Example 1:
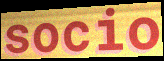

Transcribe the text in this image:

socio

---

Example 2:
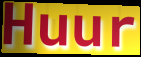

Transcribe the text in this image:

Huur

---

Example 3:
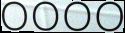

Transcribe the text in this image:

oooo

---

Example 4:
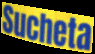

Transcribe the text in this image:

Sucheta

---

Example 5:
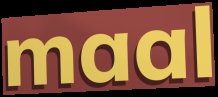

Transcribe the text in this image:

maal